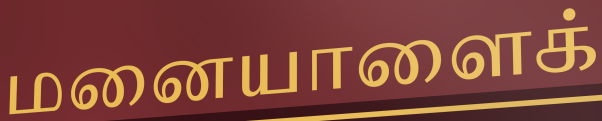
மனையாளைக்